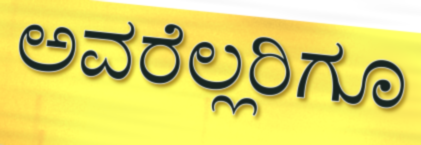
ಅವರೆಲ್ಲರಿಗೂ